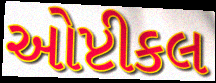
ઓપ્ટીકલ